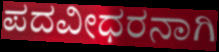
ಪದವೀಧರನಾಗಿ